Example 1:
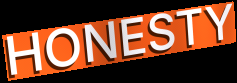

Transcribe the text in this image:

HONESTY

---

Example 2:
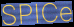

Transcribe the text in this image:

SPICe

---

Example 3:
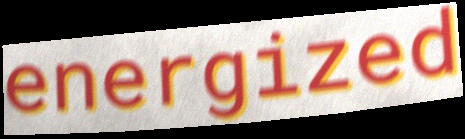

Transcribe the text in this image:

energized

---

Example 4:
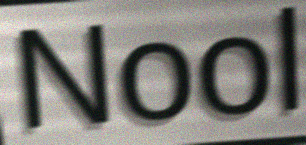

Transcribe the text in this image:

Nool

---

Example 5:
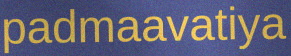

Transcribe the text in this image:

padmaavatiya